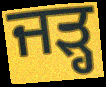
ਜੜ੍ਹ